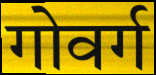
गोवर्ग